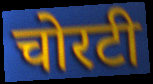
चोरटी